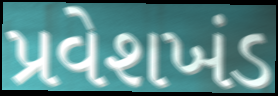
પ્રવેશખંડ